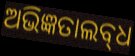
ଅଭିଜ୍ଞତାଲବ୍‌ଧ